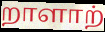
றாளாற்